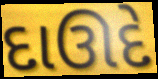
દાઊદે